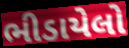
ભીડાયેલો